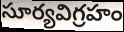
సూర్యవిగ్రహం